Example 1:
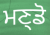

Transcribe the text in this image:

ਮਣ੍ਡੋ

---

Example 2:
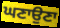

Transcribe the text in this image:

ਘਣਾਉਣਾ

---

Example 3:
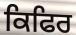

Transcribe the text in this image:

ਕਿਫਿਰ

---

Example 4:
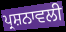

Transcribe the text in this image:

ਪ੍ਰਸ਼ਨਾਵਲੀ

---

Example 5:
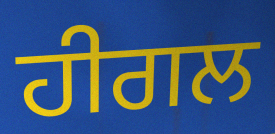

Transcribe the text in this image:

ਹੀਗਲ